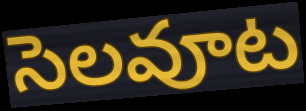
సెలవూట